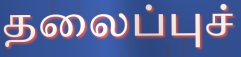
தலைப்புச்